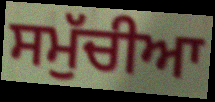
ਸਮੁੱਚੀਆ